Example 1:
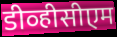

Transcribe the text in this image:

डीव्हीसीएम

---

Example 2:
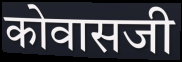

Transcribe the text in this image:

कोवासजी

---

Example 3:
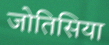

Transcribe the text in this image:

जोतिसिया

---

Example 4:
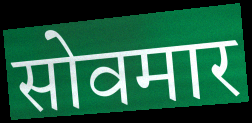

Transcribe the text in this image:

सोवमार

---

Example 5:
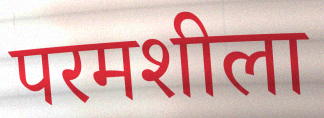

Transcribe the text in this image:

परमशीला